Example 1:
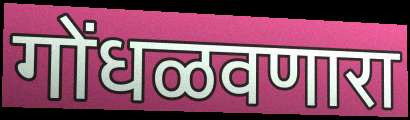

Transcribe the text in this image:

गोंधळवणारा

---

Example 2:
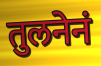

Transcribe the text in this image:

तुलनेनं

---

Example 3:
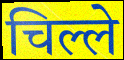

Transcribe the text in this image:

चिल्ले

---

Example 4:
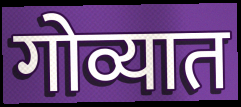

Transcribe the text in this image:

गोव्यात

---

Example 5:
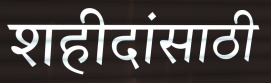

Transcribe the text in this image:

शहीदांसाठी